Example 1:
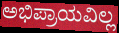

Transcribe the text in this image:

ಅಭಿಪ್ರಾಯವಿಲ್ಲ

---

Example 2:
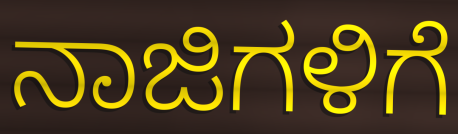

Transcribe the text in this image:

ನಾಜಿಗಳಿಗೆ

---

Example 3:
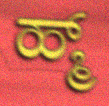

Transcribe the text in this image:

ಹ್ಮ್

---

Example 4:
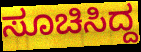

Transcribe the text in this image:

ಸೂಚಿಸಿದ್ದ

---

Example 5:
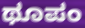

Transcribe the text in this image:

ಥೂಪಂ